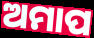
ଅମାପ